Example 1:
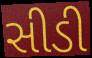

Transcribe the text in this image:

સીડી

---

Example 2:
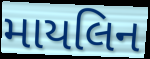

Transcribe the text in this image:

માયલિન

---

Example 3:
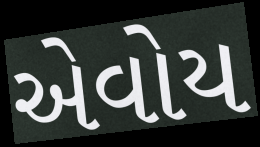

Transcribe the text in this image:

એવોય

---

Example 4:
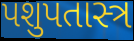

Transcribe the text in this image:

પશુપતાસ્ત્ર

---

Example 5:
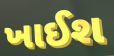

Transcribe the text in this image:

ખાઈશ